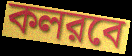
কলরবে